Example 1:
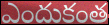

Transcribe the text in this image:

ఎందుకంత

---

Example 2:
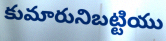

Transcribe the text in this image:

కుమారునిబట్టియు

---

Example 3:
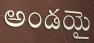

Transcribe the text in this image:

అండయై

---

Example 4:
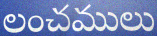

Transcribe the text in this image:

లంచములు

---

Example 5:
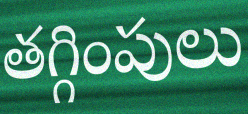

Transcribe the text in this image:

తగ్గింపులు